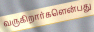
வருகிறார்களென்பது